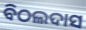
ବିଠଲଦାସ